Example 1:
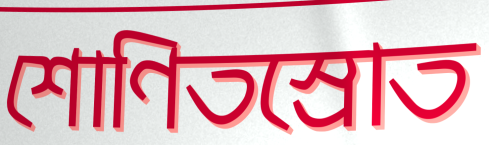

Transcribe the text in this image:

শোণিতস্রোত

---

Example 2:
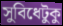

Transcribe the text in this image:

সুবিধেটুকু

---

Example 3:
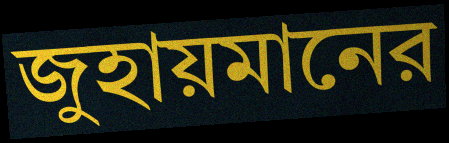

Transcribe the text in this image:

জুহায়মানের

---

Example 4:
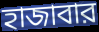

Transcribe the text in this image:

হাজাবার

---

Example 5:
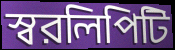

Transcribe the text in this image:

স্বরলিপিটি